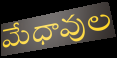
మేధావుల